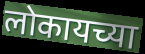
लोकायच्या